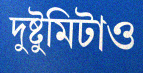
দুষ্টুমিটাও